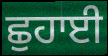
ਛੁਹਾਈ